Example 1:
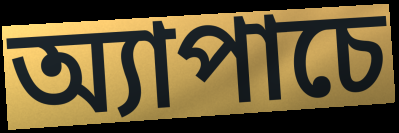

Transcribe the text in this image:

অ্যাপাচে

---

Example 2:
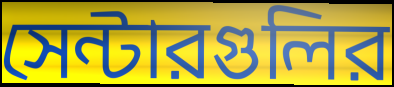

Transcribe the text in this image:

সেন্টারগুলির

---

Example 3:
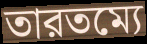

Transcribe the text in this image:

তারতম্যে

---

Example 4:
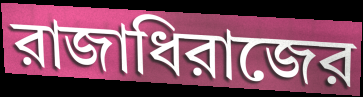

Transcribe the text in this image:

রাজাধিরাজের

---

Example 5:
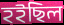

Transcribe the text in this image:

হইছিল